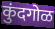
कुंदगोळ